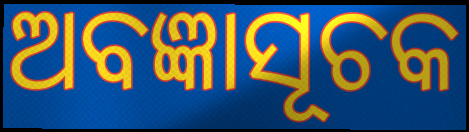
ଅବଜ୍ଞାସୂଚକ